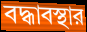
বদ্ধাবস্থার